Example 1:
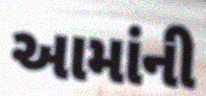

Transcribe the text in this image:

આમાંની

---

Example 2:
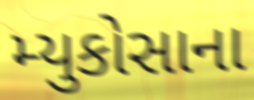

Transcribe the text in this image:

મ્યુકોસાના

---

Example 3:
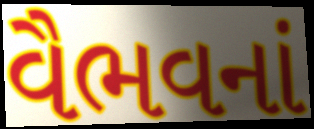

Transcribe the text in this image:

વૈભવનાં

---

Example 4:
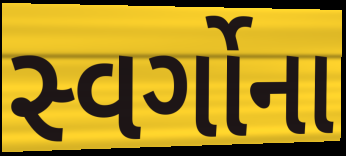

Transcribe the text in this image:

સ્વર્ગોના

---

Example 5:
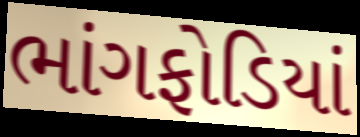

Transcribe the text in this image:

ભાંગફોડિયાં